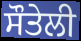
ਸੌਤੇਲੀ